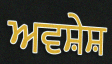
ਅਵਸ਼ੇਸ਼